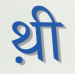
थ़ी